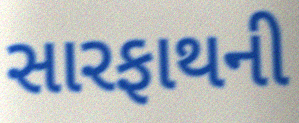
સારફાથની